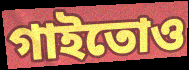
গাইতোও